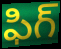
ఫిగ్